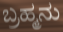
ಬ್ರಹ್ಮನು